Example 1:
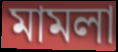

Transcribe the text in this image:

মামলা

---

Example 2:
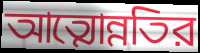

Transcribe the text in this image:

আত্মোন্নতির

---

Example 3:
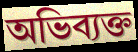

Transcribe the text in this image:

অভিব্যক্ত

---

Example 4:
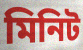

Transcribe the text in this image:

মিনিট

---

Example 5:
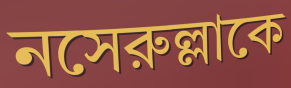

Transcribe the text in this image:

নসেরুল্লাকে